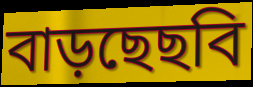
বাড়ছেছবি